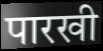
पारखी